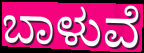
ಬಾಳುವೆ